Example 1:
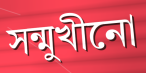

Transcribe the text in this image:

সন্মুখীনো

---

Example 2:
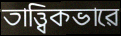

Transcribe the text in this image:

তাত্ত্বিকভাৱে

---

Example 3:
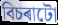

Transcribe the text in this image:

বিচৰাটো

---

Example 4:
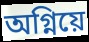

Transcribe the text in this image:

অগ্নিয়ে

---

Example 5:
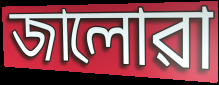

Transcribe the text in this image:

জালোৱা